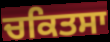
ਚਕਿਤਸਾ